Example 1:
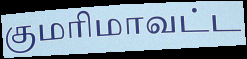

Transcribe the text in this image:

குமரிமாவட்ட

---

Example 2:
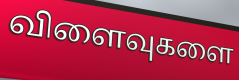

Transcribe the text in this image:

விளைவுகளை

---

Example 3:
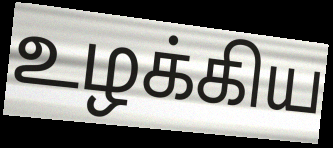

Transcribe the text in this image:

உழக்கிய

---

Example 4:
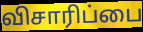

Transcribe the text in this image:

விசாரிப்பை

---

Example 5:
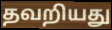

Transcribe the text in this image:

தவறியது